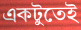
একটুতেই